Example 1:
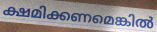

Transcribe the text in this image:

ക്ഷമിക്കണമെങ്കിൽ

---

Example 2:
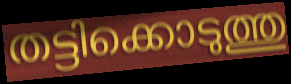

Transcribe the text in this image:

തട്ടിക്കൊടുത്തു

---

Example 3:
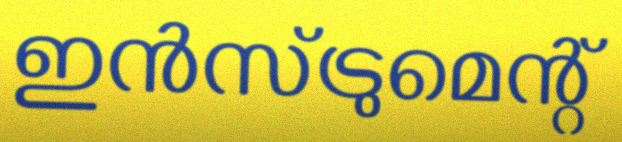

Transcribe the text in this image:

ഇൻസ്ട്രുമെന്റ്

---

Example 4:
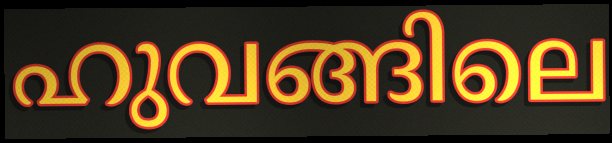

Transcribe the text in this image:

ഹുവങ്ങിലെ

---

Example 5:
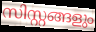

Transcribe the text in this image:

സിസ്റ്റങ്ങളും